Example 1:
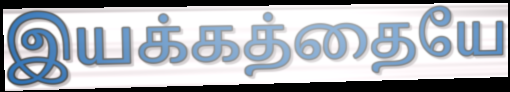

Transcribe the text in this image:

இயக்கத்தையே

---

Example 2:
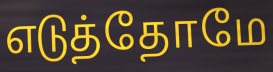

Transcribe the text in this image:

எடுத்தோமே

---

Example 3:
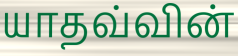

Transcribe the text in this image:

யாதவ்வின்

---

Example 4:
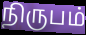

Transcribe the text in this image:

நிருபம்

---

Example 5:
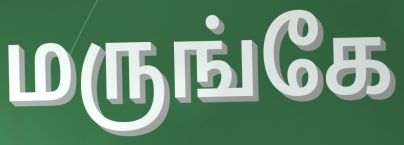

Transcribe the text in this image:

மருங்கே